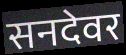
सनदेवर